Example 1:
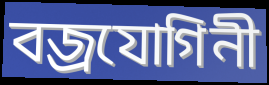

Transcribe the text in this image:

বজ্রযোগিনী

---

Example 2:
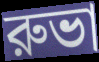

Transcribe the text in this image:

রুভা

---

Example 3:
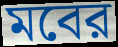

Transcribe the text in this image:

মবের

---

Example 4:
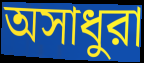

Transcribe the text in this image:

অসাধুরা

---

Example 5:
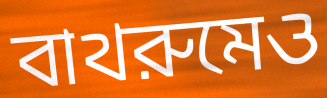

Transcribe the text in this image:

বাথরুমেও